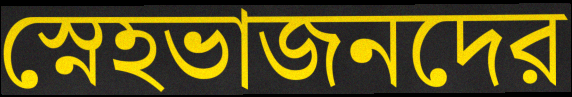
স্নেহভাজনদের